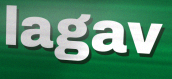
lagav